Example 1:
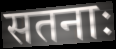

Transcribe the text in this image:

सतनाः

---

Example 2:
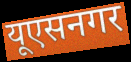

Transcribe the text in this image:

यूएसनगर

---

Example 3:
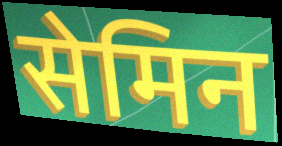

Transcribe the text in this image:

सेमिन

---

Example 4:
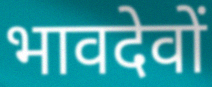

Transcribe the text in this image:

भावदेवों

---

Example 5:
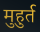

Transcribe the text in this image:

मुहुर्त